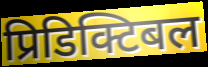
प्रिडिक्टिबल